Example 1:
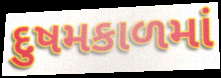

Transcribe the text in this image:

દુષમકાળમાં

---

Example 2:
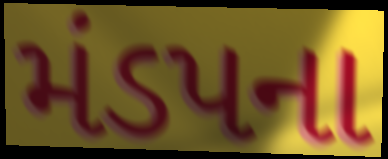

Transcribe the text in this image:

મંડપના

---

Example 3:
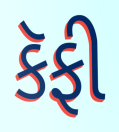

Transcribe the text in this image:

કૅફી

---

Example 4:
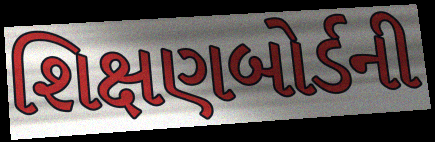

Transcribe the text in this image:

શિક્ષણબોર્ડની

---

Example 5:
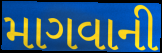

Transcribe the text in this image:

માગવાની